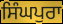
ਸਿੰਘਪੁਰਾ